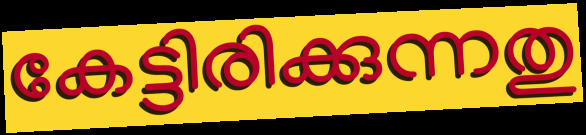
കേട്ടിരിക്കുന്നതു